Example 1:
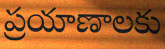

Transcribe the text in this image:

ప్రయాణాలకు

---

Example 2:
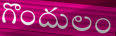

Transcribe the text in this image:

గొందులం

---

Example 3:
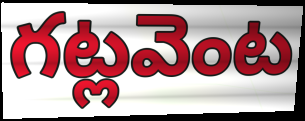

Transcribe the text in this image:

గట్లవెంట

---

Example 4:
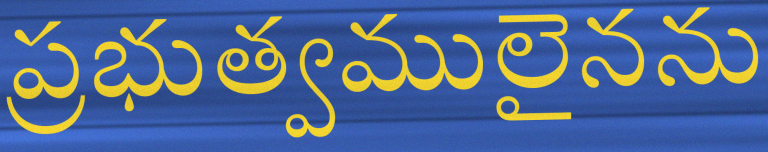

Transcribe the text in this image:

ప్రభుత్వములైనను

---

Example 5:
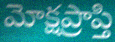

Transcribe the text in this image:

మోక్షప్రాప్తి